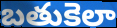
బతుకెలా